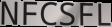
NFCSFL